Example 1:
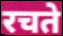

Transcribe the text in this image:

रचते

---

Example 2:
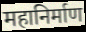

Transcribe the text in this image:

महानिर्माण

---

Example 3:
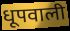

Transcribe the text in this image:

धूपवाली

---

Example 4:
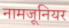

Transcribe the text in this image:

नामजूनियर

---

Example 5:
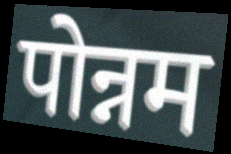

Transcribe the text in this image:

पोन्नम